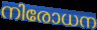
നിരോധന